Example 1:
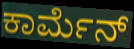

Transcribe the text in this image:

ಕಾರ್ಮೆನ್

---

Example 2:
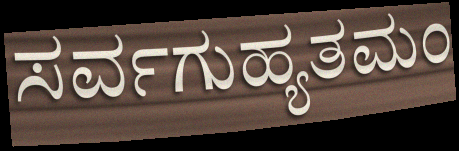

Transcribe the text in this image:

ಸರ್ವಗುಹ್ಯತಮಂ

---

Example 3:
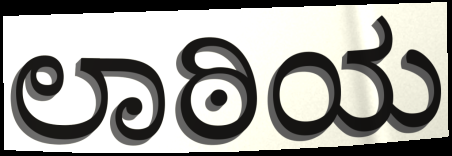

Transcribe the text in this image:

ಲಾಠಿಯ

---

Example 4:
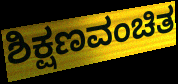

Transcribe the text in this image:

ಶಿಕ್ಷಣವಂಚಿತ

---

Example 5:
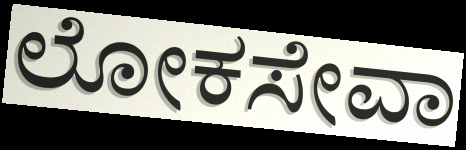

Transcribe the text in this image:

ಲೋಕಸೇವಾ